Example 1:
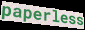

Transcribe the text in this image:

paperless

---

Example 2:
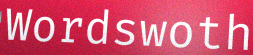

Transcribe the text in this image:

Wordswoth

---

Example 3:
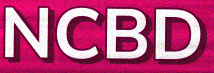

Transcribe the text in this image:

NCBD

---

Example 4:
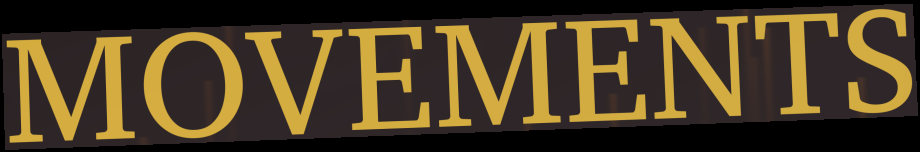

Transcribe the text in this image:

MOVEMENTS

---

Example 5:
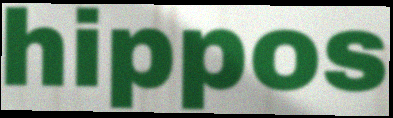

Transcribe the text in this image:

hippos